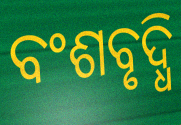
ବଂଶବୃଦ୍ଧି